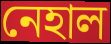
নেহাল